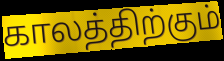
காலத்திற்கும்